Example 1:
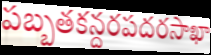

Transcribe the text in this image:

పబ్బతకన్దరపదరసాఖా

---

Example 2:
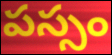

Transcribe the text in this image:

పస్సం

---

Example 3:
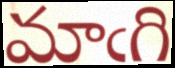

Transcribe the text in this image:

మాఁగి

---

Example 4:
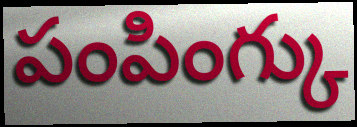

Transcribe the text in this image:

పంపింగ్కు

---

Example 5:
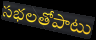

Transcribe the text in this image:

సభలతోపాటు